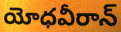
యోధవీరాన్